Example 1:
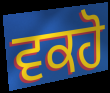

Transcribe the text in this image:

ਵਕਹੋ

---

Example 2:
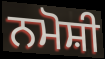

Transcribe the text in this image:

ਨਮੋਸ਼ੀ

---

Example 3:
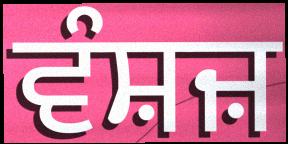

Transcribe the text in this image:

ਵੰਸ਼ਜ਼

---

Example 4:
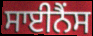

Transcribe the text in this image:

ਸਾਈਨੈਂਸ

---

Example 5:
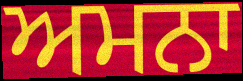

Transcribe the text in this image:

ਅਮਨਾ